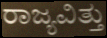
ರಾಜ್ಯವಿತ್ತು